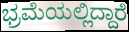
ಭ್ರಮೆಯಲ್ಲಿದ್ದಾರೆ